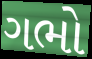
ગભો